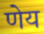
णेय